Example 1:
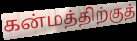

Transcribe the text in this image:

கன்மத்திற்குத்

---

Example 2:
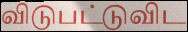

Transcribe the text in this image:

விடுபட்டுவிட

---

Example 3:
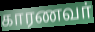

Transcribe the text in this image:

காரணவர்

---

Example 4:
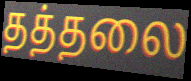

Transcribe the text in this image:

தத்தலை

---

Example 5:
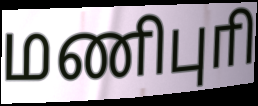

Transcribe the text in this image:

மணிபுரி